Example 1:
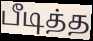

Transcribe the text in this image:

பீடித்த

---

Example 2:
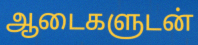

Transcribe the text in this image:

ஆடைகளுடன்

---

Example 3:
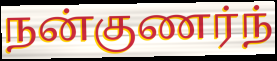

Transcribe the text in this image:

நன்குணர்ந்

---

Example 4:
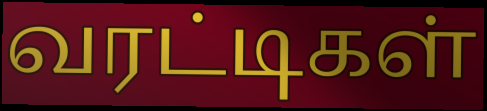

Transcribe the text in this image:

வரட்டிகள்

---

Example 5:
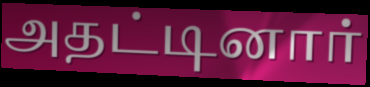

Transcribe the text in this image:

அதட்டினார்